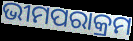
ଭୀମପରାକ୍ରମ